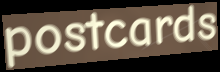
postcards